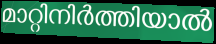
മാറ്റിനിർത്തിയാൽ